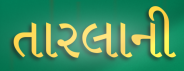
તારલાની